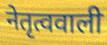
नेतृत्ववाली